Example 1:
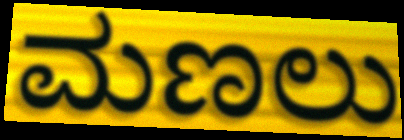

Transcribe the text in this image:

ಮಣಲು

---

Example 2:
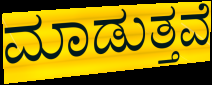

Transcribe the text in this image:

ಮಾಡುತ್ತವೆ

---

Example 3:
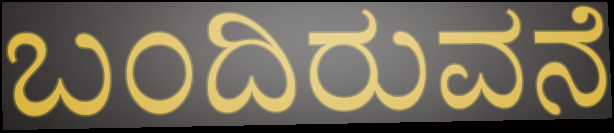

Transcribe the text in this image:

ಬಂದಿರುವನೆ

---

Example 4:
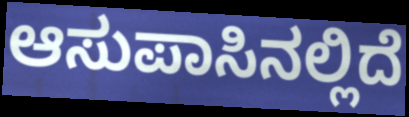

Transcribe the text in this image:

ಆಸುಪಾಸಿನಲ್ಲಿದೆ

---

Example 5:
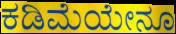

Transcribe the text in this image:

ಕಡಿಮೆಯೇನೂ